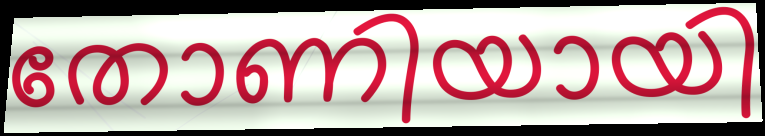
തോണിയായി